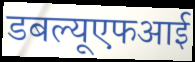
डबल्यूएफआई